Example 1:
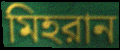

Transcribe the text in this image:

মিহরান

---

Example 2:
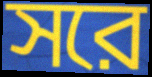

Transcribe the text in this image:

সরে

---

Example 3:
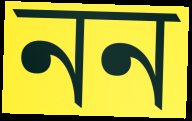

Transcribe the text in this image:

নন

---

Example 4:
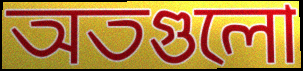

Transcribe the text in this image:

অতগুলো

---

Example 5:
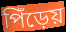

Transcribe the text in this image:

পিঁড়েয়